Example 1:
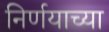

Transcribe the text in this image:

निर्णयाच्या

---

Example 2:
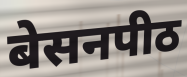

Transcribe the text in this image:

बेसनपीठ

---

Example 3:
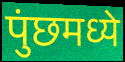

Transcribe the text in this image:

पुंछमध्ये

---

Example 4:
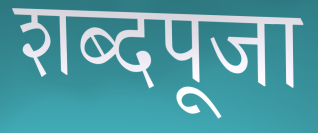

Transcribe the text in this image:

शब्दपूजा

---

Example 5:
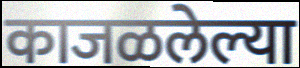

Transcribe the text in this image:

काजळलेल्या